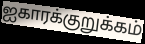
ஐகாரக்குறுக்கம்